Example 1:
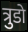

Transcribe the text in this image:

त्रुडो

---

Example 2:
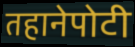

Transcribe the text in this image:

तहानेपोटी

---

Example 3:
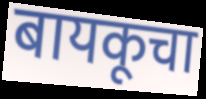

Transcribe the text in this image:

बायकूचा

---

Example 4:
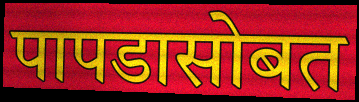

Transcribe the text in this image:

पापडासोबत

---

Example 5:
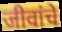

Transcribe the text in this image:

जीवांचे